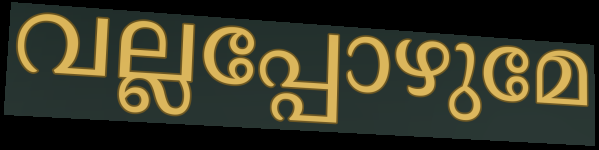
വല്ലപ്പോഴുമേ